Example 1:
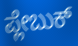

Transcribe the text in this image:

ಪ್ಲೇಬುಕ್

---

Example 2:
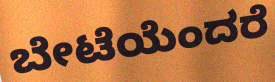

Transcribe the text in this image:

ಬೇಟೆಯೆಂದರೆ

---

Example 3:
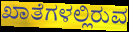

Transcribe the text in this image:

ಖಾತೆಗಳಲ್ಲಿರುವ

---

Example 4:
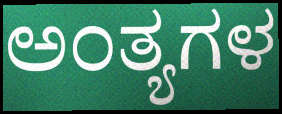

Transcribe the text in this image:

ಅಂತ್ಯಗಳ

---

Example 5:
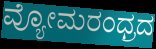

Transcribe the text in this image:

ವ್ಯೋಮರಂಧ್ರದ